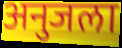
अनुजला